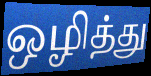
ஒழித்து